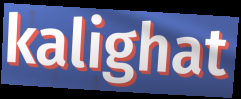
kalighat